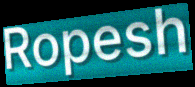
Ropesh